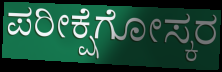
ಪರೀಕ್ಷೆಗೋಸ್ಕರ